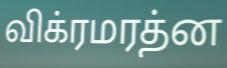
விக்ரமரத்ன